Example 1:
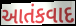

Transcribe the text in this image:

આતંકવાદ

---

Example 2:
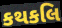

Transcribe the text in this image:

કથકલિ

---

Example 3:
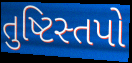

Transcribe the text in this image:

તુષ્ટિસ્તપો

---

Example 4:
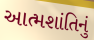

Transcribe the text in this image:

આત્મશાંતિનું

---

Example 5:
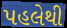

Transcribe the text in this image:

પહલેથી